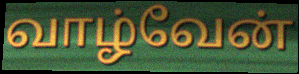
வாழ்வேன்